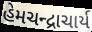
હેમચન્દ્રાચાર્ય